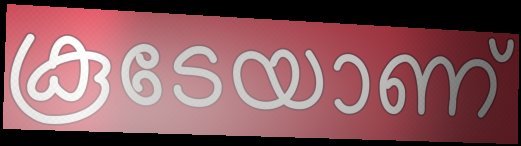
കൂടേയാണ്